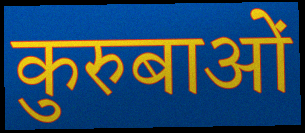
कुरुबाओं